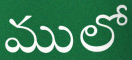
ములో